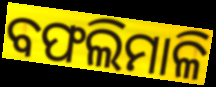
ବଫଲିମାଳି